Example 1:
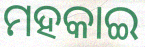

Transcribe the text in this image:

ମହକାଇ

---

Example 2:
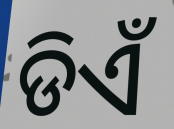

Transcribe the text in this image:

ଡିଏଁ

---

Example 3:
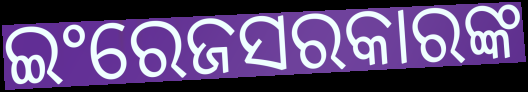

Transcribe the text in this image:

ଇଂରେଜସରକାରଙ୍କ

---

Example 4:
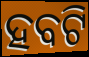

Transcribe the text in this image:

ହବଟି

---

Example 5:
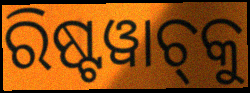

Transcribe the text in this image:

ରିଷ୍ଟୱାଚ୍‌କୁ